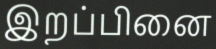
இறப்பினை